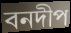
বনদীপ